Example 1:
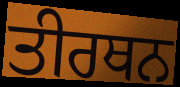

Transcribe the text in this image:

ਤੀਰਥਨ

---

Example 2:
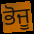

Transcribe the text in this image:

ਭੋਜੂ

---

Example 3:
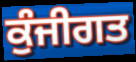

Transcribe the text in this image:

ਕੁੰਜੀਗਤ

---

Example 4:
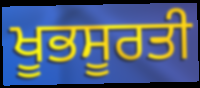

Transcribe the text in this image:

ਖੂਭਸੂਰਤੀ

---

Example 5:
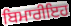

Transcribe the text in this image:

ਬਿਮਾਰੀਇਹ